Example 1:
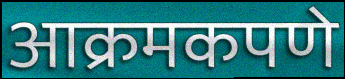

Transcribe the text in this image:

आक्रमकपणे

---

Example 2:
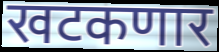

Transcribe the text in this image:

खटकणार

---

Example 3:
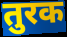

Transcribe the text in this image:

तुरक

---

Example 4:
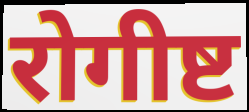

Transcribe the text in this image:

रोगीष्ट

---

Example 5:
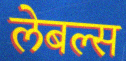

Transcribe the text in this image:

लेबल्स